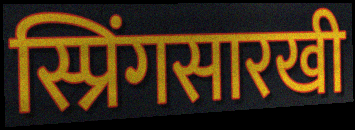
स्प्रिंगसारखी